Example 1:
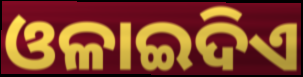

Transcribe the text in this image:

ଓଳାଇଦିଏ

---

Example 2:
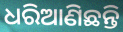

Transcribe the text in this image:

ଧରିଆଣିଛନ୍ତି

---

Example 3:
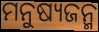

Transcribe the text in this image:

ମନୁଷ୍ୟଜନ୍ମ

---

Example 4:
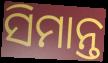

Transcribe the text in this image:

ସିମାନ୍ତ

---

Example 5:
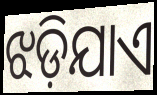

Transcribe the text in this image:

ଝଡ଼ିଯାଏ